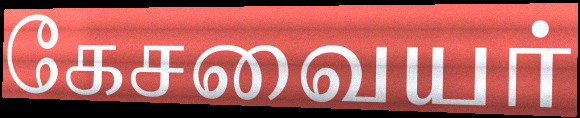
கேசவையர்